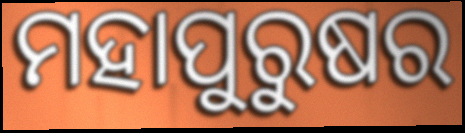
ମହାପୁରୁଷର